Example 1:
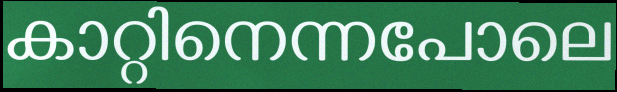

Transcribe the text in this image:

കാറ്റിനെന്നപോലെ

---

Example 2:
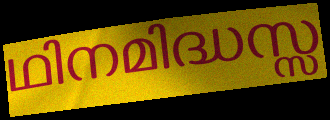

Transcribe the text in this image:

ഥിനമിദ്ധസ്സ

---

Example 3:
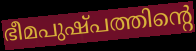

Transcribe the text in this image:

ഭീമപുഷ്പത്തിന്റെ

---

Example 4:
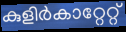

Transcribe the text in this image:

കുളിർകാറ്റേറ്റ്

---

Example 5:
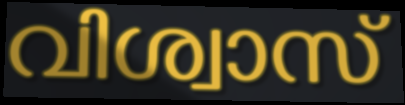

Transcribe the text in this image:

വിശ്വാസ്